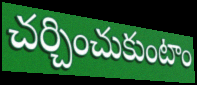
చర్చించుకుంటాం